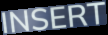
INSERT